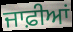
ਜਾਫ਼ੀਆਂ